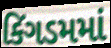
કિંગડમમાં